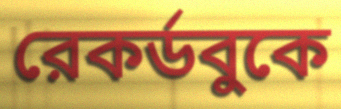
রেকর্ডবুকে